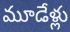
మూడేళ్లు